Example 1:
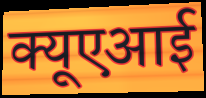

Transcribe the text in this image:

क्यूएआई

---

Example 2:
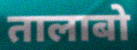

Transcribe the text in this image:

तालाबो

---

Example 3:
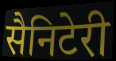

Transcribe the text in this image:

सैनिटेरी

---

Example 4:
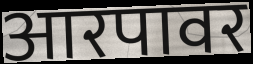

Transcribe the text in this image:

आरपावर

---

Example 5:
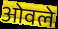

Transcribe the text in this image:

ओवले